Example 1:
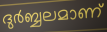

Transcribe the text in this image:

ദുർബ്ബലമാണ്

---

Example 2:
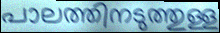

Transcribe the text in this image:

പാലത്തിനടുത്തുള്ള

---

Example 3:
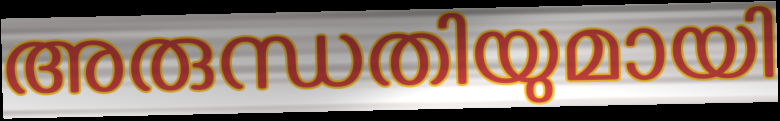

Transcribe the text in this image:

അരുന്ധതിയുമായി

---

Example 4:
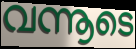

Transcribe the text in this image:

വന്നൂടെ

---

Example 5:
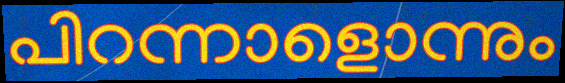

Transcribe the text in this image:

പിറന്നാളൊന്നും